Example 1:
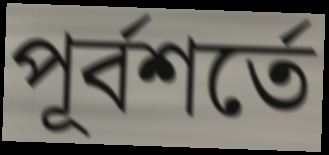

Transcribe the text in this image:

পূর্বশর্তে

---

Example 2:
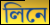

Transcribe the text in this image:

লিনে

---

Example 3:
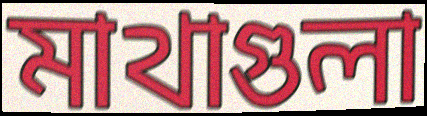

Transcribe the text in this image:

মাথাগুলা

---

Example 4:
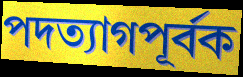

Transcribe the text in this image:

পদত্যাগপূর্বক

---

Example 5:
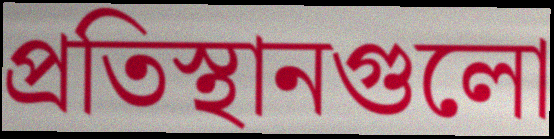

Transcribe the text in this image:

প্রতিস্থানগুলো